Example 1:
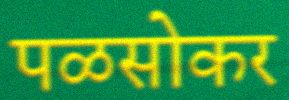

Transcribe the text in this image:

पळसोकर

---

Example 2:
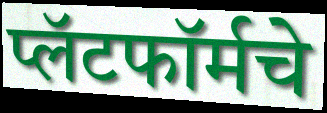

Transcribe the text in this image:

प्लॅटफॉर्मचे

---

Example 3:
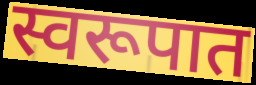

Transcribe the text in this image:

स्वरूपात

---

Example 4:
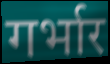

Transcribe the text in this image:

गर्भार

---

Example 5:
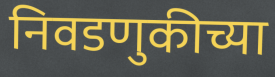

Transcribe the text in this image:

निवडणुकीच्या